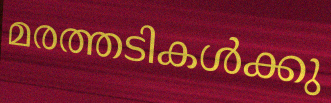
മരത്തടികൾക്കു